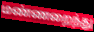
மண்ணறைந்து